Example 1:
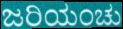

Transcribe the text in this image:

ಜರಿಯಂಚು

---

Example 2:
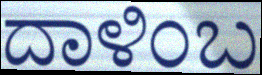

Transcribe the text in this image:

ದಾಳಿಂಬ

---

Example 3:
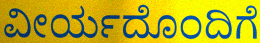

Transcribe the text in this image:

ವೀರ್ಯದೊಂದಿಗೆ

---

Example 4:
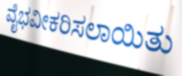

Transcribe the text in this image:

ವೈಭವೀಕರಿಸಲಾಯಿತು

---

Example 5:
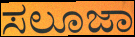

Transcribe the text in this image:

ಸಲೂಜಾ